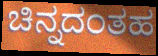
ಚಿನ್ನದಂತಹ